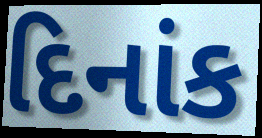
દિનાંક